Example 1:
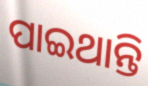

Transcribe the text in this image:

ପାଇଥାନ୍ତି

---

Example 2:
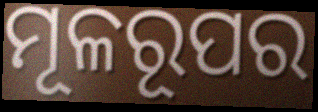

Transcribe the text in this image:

ମୂଳରୂପର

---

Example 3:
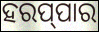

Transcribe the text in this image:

ହରପ୍‌ପାର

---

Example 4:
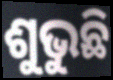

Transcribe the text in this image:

ଶୁଭୁଛି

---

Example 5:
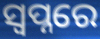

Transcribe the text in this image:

ସ୍ୱପ୍ନରେ